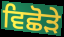
ਵਿਛੋੜੇ